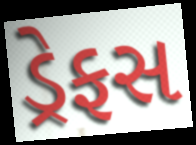
ડ્રેફસ